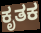
ಕೃತಕ